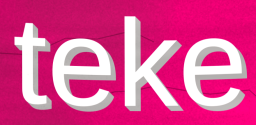
teke